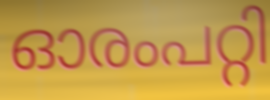
ഓരംപറ്റി